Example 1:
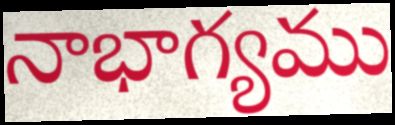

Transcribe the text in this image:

నాభాగ్యము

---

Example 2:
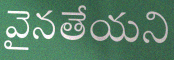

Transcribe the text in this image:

వైనతేయని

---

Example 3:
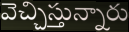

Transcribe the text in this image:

వెచ్చిస్తున్నారు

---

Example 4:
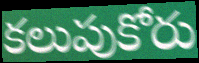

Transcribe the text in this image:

కలుపుకోరు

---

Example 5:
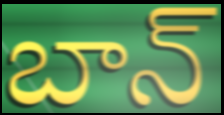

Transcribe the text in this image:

బాన్